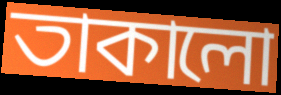
তাকালো